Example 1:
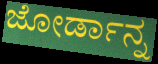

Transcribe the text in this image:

ಜೋರ್ಡಾನ್ನ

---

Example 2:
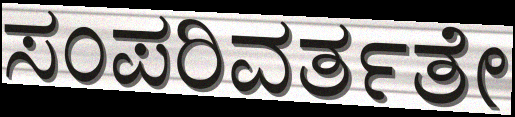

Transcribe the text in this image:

ಸಂಪರಿವರ್ತತೇ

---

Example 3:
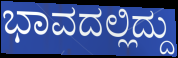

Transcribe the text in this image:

ಭಾವದಲ್ಲಿದ್ದು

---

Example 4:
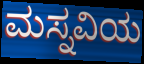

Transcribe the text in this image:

ಮಸ್ನವಿಯ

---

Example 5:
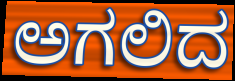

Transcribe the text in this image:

ಅಗಲಿದ